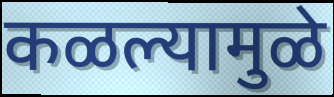
कळल्यामुळे